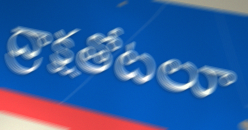
ద్రాక్షతోటలూ